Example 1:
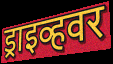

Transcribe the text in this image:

ड्राइव्हवर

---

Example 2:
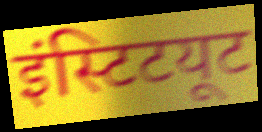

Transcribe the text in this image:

इंस्टिटयूट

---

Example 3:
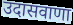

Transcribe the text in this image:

उदासवाणा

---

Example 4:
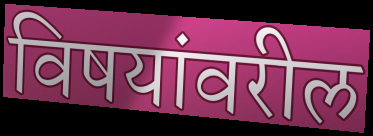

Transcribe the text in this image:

विषयांवरील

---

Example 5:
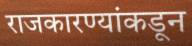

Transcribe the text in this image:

राजकारण्यांकडून